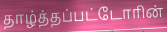
தாழ்த்தப்பட்டோரின்